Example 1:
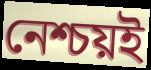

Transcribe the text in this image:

নেশ্চয়ই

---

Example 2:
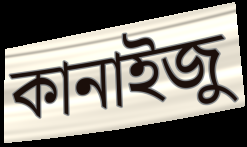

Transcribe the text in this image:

কানাইজু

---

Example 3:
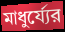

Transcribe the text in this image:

মাধুর্য্যের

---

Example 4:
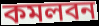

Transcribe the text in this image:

কমলবন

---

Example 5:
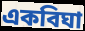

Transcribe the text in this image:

একবিঘা